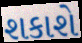
શકાશે